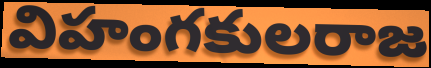
విహంగకులరాజ